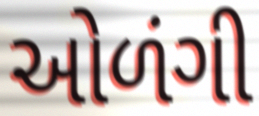
ઓળંગી